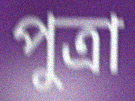
পুত্রা